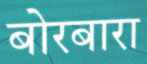
बोरबारा